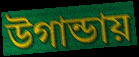
উগান্ডায়